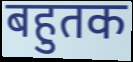
बहुतक